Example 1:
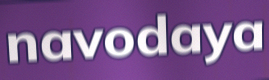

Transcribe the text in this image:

navodaya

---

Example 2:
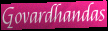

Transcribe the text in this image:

Govardhandas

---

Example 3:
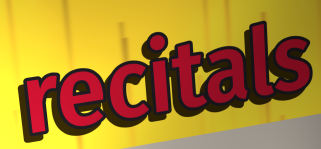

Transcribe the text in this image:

recitals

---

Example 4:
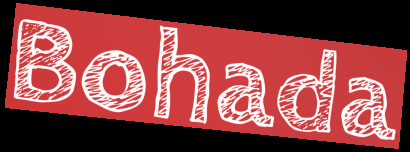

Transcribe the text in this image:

Bohada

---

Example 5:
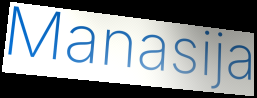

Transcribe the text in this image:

Manasija